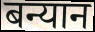
बन्यान